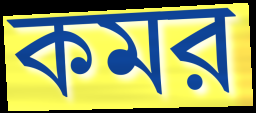
কমর